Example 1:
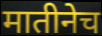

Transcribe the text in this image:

मातीनेच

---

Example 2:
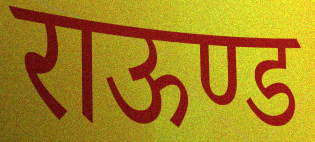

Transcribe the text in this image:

राऊण्ड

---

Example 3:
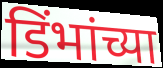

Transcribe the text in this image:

डिंभांच्या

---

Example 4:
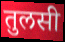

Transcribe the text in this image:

तुलसी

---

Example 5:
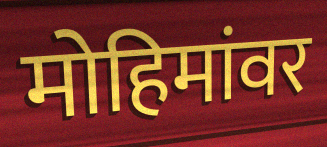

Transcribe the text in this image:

मोहिमांवर